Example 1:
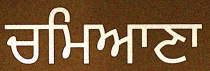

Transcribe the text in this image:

ਚਮਿਆਣਾ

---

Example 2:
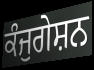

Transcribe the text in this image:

ਕੰਜੁਗੇਸ਼ਨ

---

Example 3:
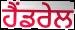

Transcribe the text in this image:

ਹੈਂਡਰੇਲ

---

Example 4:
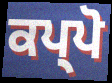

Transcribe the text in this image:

ਕਪ੍ਪੋ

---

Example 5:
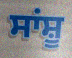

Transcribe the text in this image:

ਸਾਂਸ਼ੂ